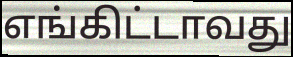
எங்கிட்டாவது